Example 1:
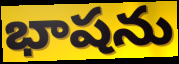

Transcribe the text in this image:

భాషను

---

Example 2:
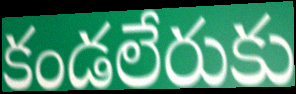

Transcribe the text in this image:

కండలేరుకు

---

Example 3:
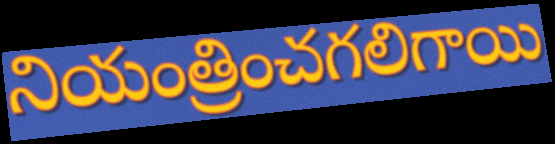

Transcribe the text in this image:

నియంత్రించగలిగాయి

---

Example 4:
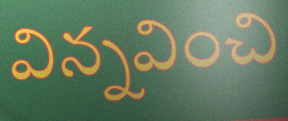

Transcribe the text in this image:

విన్నవించి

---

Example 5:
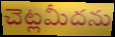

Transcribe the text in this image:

చెట్లమీదను